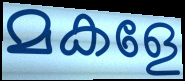
മകളേ